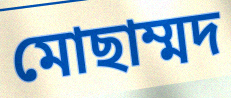
মোছাম্মদ